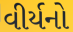
વીર્યનો